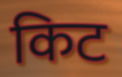
किट